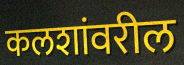
कलशांवरील